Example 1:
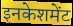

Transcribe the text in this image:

इनकेशमेंट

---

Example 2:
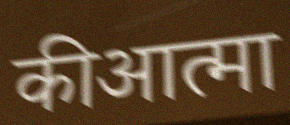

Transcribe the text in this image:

कीआत्मा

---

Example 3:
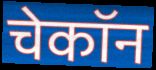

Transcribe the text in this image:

चेकॉन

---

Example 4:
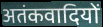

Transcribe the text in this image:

अतंकवादियों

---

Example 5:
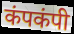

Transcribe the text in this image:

कंपकंपी